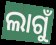
ଲାଗୁଁ